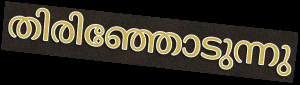
തിരിഞ്ഞോടുന്നു